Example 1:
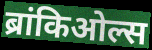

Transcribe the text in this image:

ब्रांकिओल्स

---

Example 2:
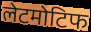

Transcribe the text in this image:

लेटमोटिफ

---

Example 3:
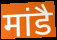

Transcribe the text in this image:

मांडै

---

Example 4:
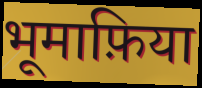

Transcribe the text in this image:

भूमाफ़िया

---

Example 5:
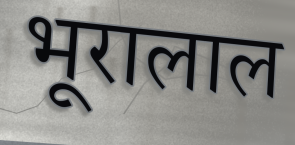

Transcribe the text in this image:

भूरालाल